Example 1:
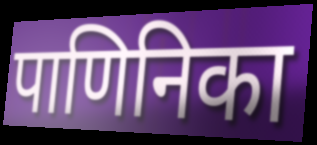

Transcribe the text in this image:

पाणिनिका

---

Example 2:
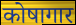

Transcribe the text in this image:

कोषागार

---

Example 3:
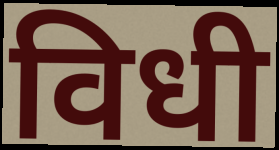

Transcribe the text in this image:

विधी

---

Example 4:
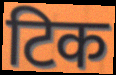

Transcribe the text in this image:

टिक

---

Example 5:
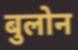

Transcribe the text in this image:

बुलोन